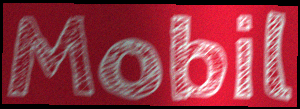
Mobil